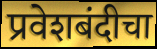
प्रवेशबंदीचा